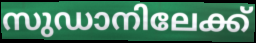
സുഡാനിലേക്ക്